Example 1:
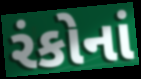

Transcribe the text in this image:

રંકોનાં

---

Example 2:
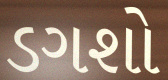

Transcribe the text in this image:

ડગશો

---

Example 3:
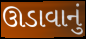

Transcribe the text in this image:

ઊડાવાનું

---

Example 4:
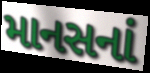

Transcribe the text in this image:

માનસનાં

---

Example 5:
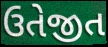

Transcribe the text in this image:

ઉતેજીત